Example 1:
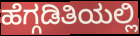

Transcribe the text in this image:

ಹೆಗ್ಗಡಿತಿಯಲ್ಲಿ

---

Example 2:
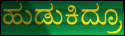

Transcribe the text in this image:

ಹುಡುಕಿದ್ರೂ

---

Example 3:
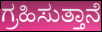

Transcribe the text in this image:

ಗ್ರಹಿಸುತ್ತಾನೆ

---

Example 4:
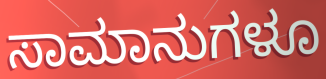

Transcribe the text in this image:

ಸಾಮಾನುಗಳೂ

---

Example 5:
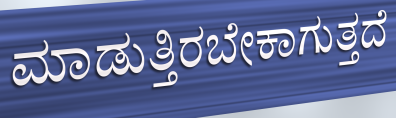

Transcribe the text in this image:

ಮಾಡುತ್ತಿರಬೇಕಾಗುತ್ತದೆ